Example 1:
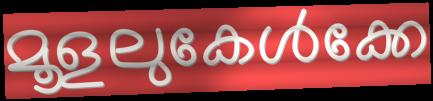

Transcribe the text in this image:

മൂളലുകേൾക്കേ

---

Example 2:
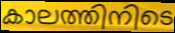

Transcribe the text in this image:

കാലത്തിനിടെ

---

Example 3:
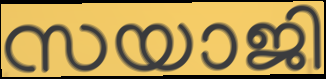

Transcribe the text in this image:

സയാജി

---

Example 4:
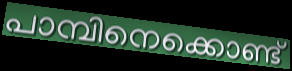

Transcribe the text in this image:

പാമ്പിനെക്കൊണ്ട്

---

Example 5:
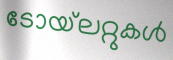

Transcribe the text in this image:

ടോയ്‌ലറ്റുകൾ